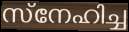
സ്‌നേഹിച്ച